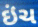
ઇંચ